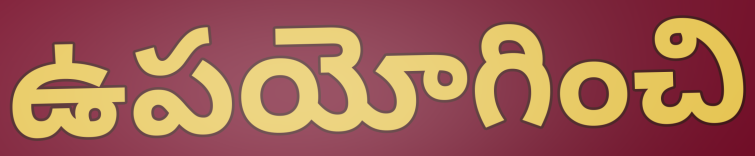
ఉపయోగించి